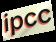
ipcc